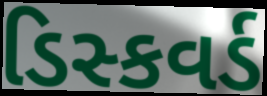
ડિસ્કવર્ડ